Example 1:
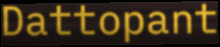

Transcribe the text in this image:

Dattopant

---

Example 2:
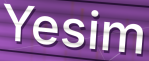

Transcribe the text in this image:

Yesim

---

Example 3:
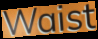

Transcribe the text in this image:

Waist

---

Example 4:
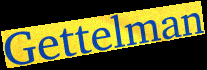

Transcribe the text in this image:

Gettelman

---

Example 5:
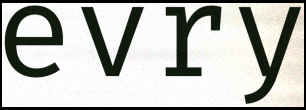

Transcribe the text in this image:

evry